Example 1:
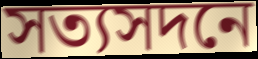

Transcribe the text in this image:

সত্যসদনে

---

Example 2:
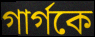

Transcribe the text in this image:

গার্গকে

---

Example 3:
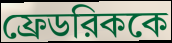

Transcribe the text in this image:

ফ্রেডরিককে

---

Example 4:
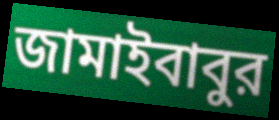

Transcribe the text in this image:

জামাইবাবুর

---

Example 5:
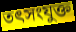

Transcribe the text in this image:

তৎসংযুক্ত